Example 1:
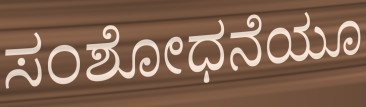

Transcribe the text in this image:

ಸಂಶೋಧನೆಯೂ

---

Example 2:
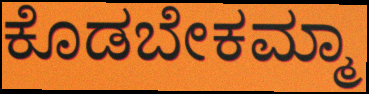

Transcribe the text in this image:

ಕೊಡಬೇಕಮ್ಮಾ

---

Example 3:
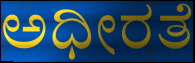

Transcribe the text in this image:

ಅಧೀರತೆ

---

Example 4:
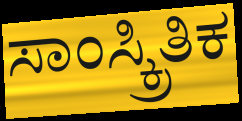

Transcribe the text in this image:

ಸಾಂಸ್ಕ್ರಿತಿಕ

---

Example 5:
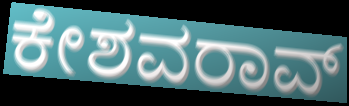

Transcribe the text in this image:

ಕೇಶವರಾವ್